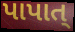
પાપાત્